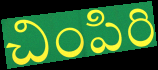
చింపిరి